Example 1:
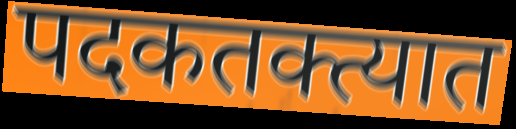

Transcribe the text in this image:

पदकतक्त्यात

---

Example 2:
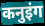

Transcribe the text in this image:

कनुइंग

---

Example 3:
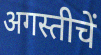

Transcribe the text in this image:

अगस्तीचें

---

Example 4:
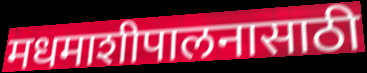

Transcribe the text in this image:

मधमाशीपालनासाठी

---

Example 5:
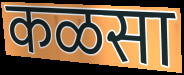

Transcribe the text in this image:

कळसा